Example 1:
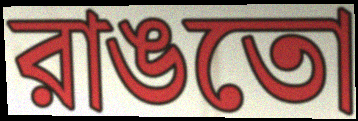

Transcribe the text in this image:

রাঙতো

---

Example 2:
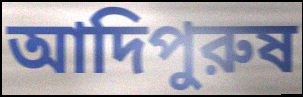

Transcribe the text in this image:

আদিপুরুষ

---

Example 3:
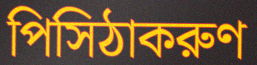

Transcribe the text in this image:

পিসিঠাকরুণ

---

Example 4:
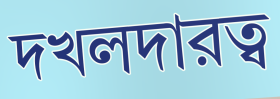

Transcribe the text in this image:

দখলদারত্ব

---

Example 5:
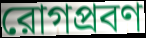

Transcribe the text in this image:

রোগপ্রবণ